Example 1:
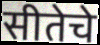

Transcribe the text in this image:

सीतेचे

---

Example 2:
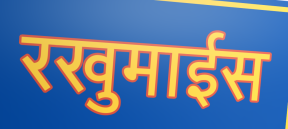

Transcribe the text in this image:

रखुमाईस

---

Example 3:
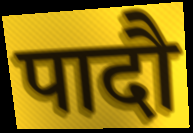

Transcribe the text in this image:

पादौ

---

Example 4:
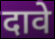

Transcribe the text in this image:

दावे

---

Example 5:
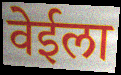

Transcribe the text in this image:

वेईला